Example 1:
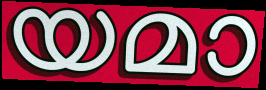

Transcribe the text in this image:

യമാ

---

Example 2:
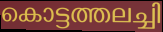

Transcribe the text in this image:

കൊട്ടത്തലച്ചി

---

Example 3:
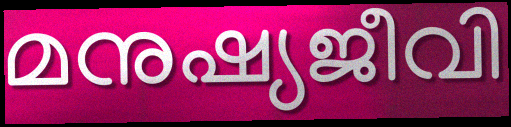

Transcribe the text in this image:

മനുഷ്യജീവി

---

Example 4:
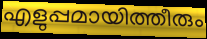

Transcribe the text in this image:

എളുപ്പമായിത്തീരും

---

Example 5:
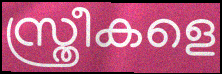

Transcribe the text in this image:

സ്ത്രീകളെ